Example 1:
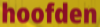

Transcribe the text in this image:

hoofden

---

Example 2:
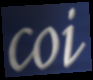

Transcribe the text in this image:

coi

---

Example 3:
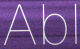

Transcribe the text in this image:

Abl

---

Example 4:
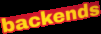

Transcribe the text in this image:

backends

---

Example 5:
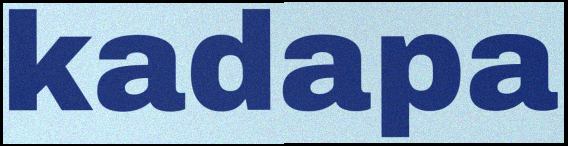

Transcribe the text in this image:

kadapa